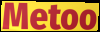
Metoo